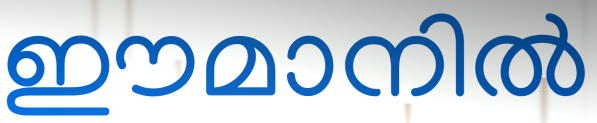
ഈമാനിൽ